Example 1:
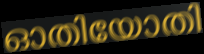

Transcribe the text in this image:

ഓതിയോതി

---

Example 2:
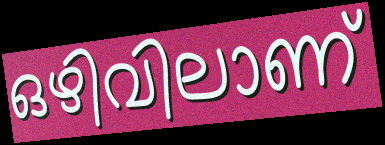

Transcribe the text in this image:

ഒഴിവിലാണ്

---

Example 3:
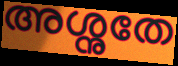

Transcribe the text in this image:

അശ്നുതേ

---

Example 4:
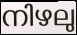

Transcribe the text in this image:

നിഴലു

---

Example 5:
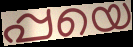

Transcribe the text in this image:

പ്പയെ